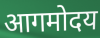
आगमोदय